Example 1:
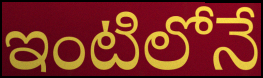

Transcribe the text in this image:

ఇంటిలోనే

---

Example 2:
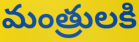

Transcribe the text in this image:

మంత్రులకి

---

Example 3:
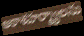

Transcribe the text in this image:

ఆకాశహర్మ్యాలను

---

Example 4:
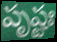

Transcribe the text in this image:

పృష్టః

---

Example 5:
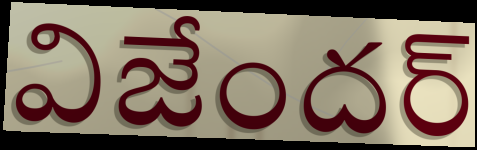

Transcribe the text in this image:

విజేందర్